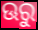
ଊରୁ